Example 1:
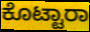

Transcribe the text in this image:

ಕೊಟ್ಟಾರಾ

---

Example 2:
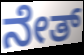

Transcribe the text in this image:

ನೇತ್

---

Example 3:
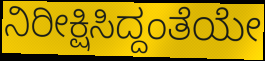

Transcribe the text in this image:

ನಿರೀಕ್ಷಿಸಿದ್ದಂತೆಯೇ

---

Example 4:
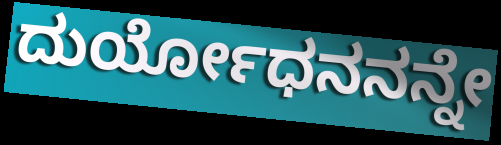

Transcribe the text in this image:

ದುರ್ಯೋಧನನನ್ನೇ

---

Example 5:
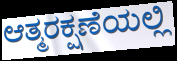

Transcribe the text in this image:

ಆತ್ಮರಕ್ಷಣೆಯಲ್ಲಿ